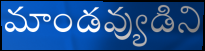
మాండవ్యుడిని